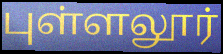
புள்ளலூர்